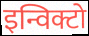
इन्विक्टो